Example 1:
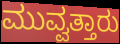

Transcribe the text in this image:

ಮುವ್ವತ್ತಾರು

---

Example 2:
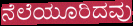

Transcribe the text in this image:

ನೆಲೆಯೂರಿದವು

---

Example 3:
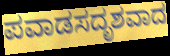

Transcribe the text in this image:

ಪವಾಡಸದೃಶವಾದ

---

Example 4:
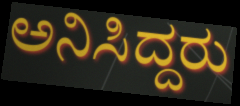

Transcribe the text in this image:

ಅನಿಸಿದ್ದರು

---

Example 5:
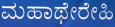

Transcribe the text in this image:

ಮಹಾಥೇರೇಹಿ